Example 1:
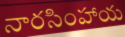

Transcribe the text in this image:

నారసింహాయ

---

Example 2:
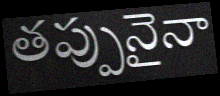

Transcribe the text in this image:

తప్పునైనా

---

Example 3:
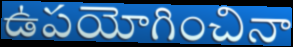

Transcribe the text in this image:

ఉపయోగించినా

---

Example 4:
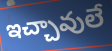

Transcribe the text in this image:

ఇచ్చావులే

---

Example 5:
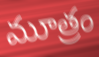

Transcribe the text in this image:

మూత్రం